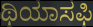
ಥಿಯಾಸಫಿ